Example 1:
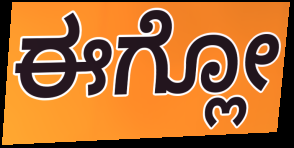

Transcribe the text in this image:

ಈಗ್ಲೋ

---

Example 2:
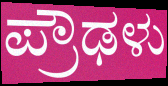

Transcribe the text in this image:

ಪ್ರೌಢಳು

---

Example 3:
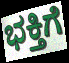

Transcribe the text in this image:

ಭಕ್ತಿಗೆ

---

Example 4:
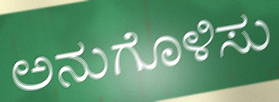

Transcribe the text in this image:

ಅನುಗೊಳಿಸು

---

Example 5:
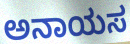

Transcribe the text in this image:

ಅನಾಯಸ